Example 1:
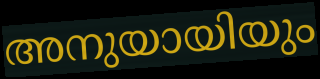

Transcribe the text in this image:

അനുയായിയും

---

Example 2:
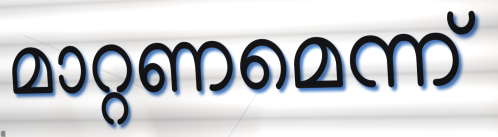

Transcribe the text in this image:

മാറ്റണമെന്ന്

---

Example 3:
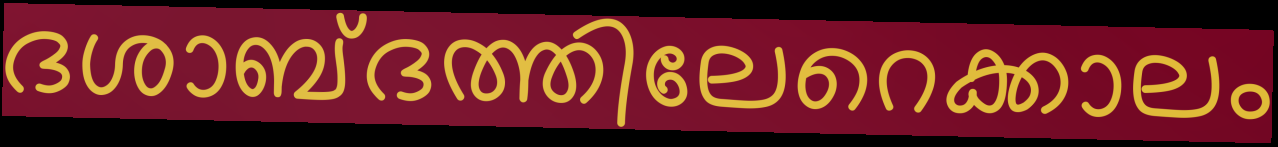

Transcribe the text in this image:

ദശാബ്ദത്തിലേറെക്കാലം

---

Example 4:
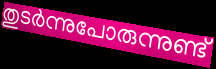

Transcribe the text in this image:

തുടർന്നുപോരുന്നുണ്ട്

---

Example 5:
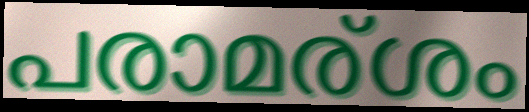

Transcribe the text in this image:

പരാമര്ശം